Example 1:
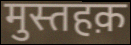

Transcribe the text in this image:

मुस्तहक़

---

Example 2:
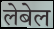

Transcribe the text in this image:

लेबेल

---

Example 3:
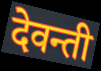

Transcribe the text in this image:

देवन्ती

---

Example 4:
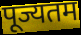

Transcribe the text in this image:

पूज्यतम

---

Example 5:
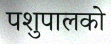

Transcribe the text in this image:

पशुपालको